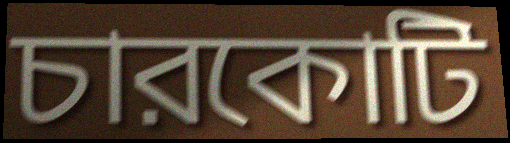
চারকোটি